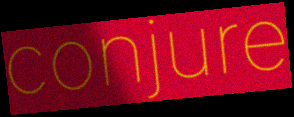
conjure